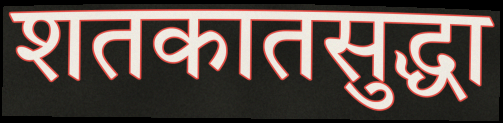
शतकातसुद्धा